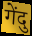
गेंदु